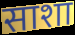
साशा